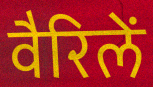
वैरिलें